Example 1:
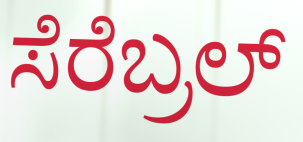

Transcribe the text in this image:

ಸೆರೆಬ್ರಲ್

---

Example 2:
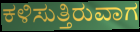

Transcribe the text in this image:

ಕಳಿಸುತ್ತಿರುವಾಗ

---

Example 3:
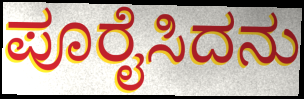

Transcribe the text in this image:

ಪೂರೈಸಿದನು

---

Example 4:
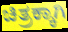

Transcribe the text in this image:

ಚಿತ್ರಕ್ಕಾಗಿ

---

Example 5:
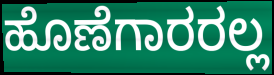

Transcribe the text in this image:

ಹೊಣೆಗಾರರಲ್ಲ